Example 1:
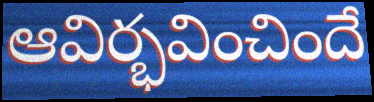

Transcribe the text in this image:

ఆవిర్భవించిందే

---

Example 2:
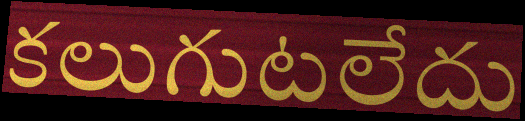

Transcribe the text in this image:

కలుగుటలేదు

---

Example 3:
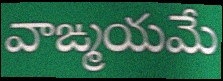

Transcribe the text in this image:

వాఙ్మయమే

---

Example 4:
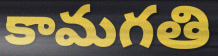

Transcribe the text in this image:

కామగతి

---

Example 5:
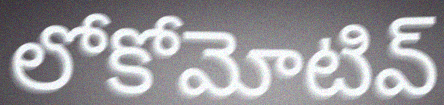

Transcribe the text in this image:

లోకోమోటివ్